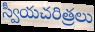
స్వీయచరిత్రలు